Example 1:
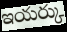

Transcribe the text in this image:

ఇయర్కు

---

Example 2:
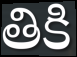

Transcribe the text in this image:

తికి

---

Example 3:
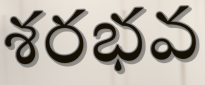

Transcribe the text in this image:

శరభవ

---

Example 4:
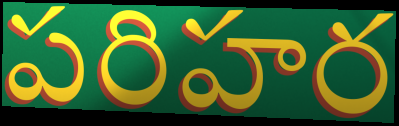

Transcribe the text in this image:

పరిహర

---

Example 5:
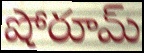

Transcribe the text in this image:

షోరూమ్